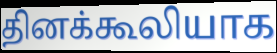
தினக்கூலியாக